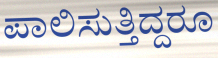
ಪಾಲಿಸುತ್ತಿದ್ದರೂ